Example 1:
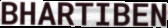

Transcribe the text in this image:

BHARTIBEN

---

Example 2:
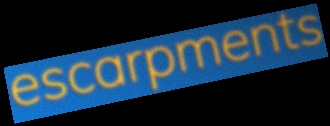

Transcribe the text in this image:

escarpments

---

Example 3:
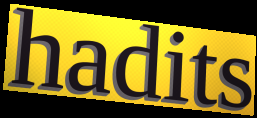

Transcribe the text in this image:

hadits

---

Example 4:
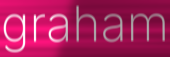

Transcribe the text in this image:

graham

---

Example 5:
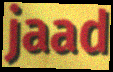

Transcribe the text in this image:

jaad